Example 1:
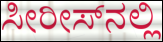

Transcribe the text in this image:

ಸೀರೀಸ್‌ನಲ್ಲಿ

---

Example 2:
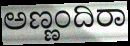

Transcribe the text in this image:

ಅಣ್ಣಂದಿರಾ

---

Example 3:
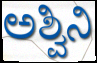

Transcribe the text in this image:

ಅಶ್ವಿನಿ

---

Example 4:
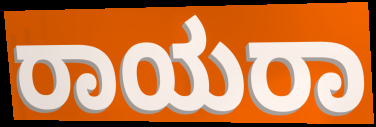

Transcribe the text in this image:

ರಾಯರಾ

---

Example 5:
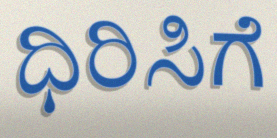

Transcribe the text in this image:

ಧಿರಿಸಿಗೆ